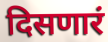
दिसणारं